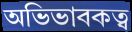
অভিভাবকত্ব